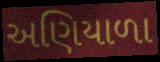
અણિયાળા